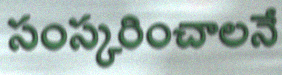
సంస్కరించాలనే